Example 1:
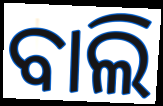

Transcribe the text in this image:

ବାଲି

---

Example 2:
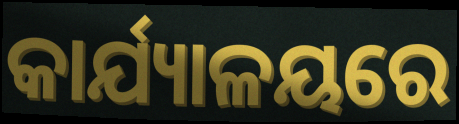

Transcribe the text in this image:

କାର୍ଯ୍ୟାଳୟରେ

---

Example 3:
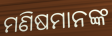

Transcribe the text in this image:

ମଣିଷମାନଙ୍କ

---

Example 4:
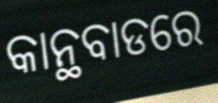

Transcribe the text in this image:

କାନ୍ଥବାଡରେ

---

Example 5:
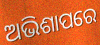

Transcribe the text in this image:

ଅଭିଶାପରେ